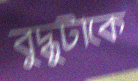
বুদ্ধুটাকে